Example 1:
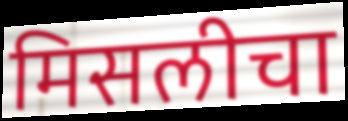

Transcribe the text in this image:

मिसलीचा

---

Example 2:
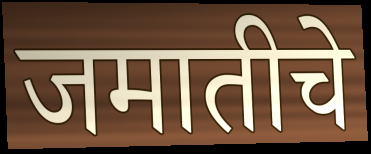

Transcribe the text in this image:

जमातीचे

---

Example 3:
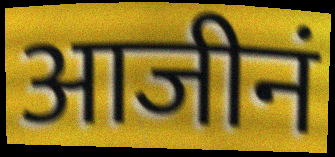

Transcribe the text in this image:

आजीनं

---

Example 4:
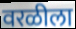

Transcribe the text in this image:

वरळीला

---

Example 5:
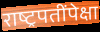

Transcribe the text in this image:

राष्ट्रपतींपेक्षा